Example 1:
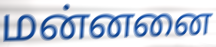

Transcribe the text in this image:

மன்னனை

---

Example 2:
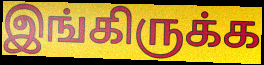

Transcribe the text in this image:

இங்கிருக்க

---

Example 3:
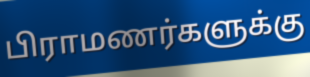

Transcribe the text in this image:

பிராமணர்களுக்கு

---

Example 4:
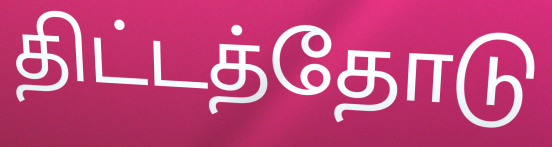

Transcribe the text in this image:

திட்டத்தோடு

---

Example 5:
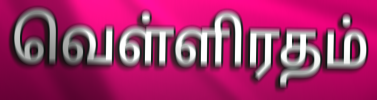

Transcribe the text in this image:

வெள்ளிரதம்